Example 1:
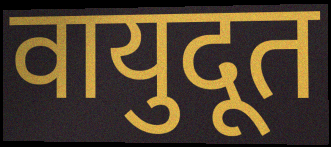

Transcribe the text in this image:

वायुदूत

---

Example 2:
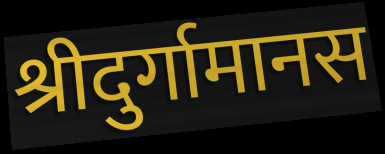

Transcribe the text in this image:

श्रीदुर्गामानस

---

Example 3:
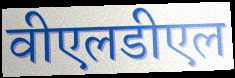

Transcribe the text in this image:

वीएलडीएल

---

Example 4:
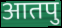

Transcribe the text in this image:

आतपु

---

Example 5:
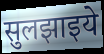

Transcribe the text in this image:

सुलझाइये